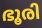
ഭൂരി